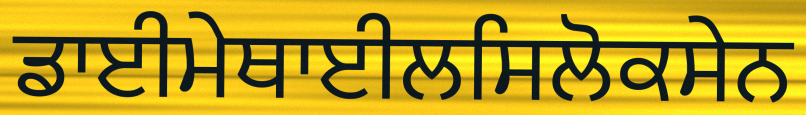
ਡਾਈਮੇਥਾਈਲਸਿਲੋਕਸੇਨ